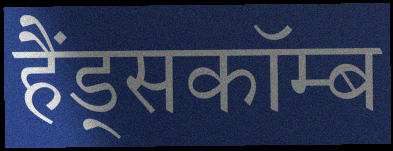
हैंड्सकॉम्ब